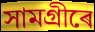
সামগ্ৰীৰে